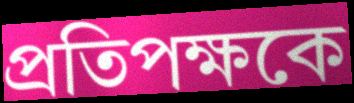
প্রতিপক্ষকে